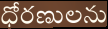
ధోరణులను